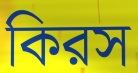
কিরস